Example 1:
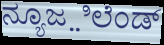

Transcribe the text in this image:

ನ್ಯೂಜ಼ಿಲೆಂಡ್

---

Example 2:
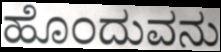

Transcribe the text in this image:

ಹೊಂದುವನು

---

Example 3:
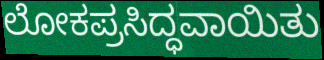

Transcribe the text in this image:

ಲೋಕಪ್ರಸಿದ್ಧವಾಯಿತು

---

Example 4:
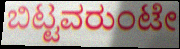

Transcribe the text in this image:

ಬಿಟ್ಟವರುಂಟೇ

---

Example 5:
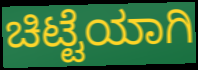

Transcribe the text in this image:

ಚಿಟ್ಟೆಯಾಗಿ